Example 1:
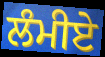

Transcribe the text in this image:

ਲੰਮੀਏ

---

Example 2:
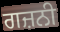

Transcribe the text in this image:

ਗਜ਼ਨੀ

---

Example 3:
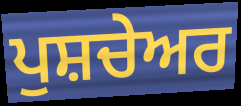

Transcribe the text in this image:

ਪੁਸ਼ਚੇਅਰ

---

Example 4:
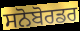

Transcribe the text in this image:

ਸਨੋਬੋਰਡਰ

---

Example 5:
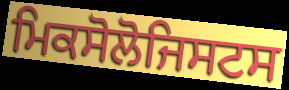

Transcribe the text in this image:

ਮਿਕਸੋਲੋਜਿਸਟਸ